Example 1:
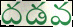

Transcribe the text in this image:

దడవ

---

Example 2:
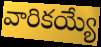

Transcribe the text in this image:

వారికయ్యే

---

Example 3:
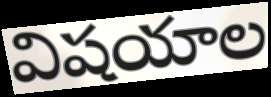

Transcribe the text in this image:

విషయాల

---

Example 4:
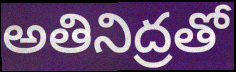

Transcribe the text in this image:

అతినిద్రతో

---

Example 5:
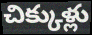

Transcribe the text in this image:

చిక్కుళ్లు